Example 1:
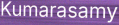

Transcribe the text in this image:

Kumarasamy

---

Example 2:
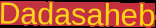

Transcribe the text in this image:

Dadasaheb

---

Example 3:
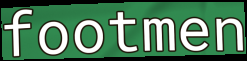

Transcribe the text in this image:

footmen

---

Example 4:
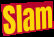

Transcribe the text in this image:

Slam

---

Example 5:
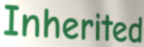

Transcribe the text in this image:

Inherited